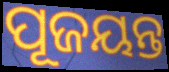
ପୂଜୟନ୍ତ